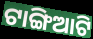
ଟାଙ୍ଗିଆଟି